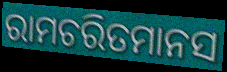
ରାମଚରିତମାନସ